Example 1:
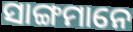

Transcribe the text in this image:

ସାଙ୍ଗମାନେ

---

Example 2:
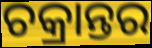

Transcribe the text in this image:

ଚକ୍ରାନ୍ତର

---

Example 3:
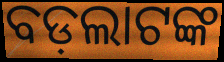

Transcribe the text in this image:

ବଡ଼ଲାଟଙ୍କ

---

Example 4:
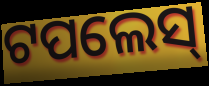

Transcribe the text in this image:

ଟପଲେସ୍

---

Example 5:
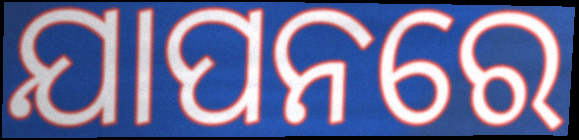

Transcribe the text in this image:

ଯାପନରେ